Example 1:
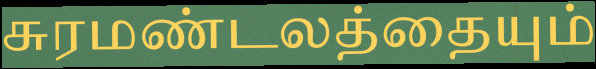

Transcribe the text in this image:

சுரமண்டலத்தையும்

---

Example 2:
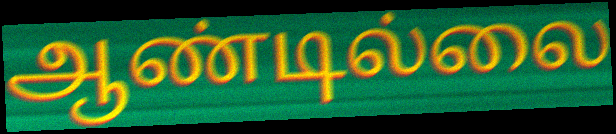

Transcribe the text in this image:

ஆண்டில்லை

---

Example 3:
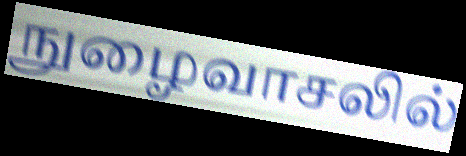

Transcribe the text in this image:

நுழைவாசலில்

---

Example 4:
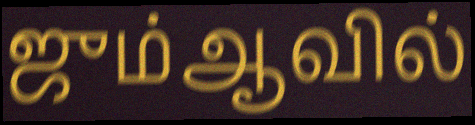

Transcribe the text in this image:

ஜும்ஆவில்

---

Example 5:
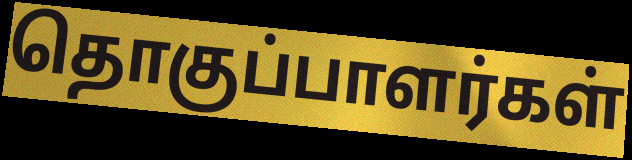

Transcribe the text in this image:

தொகுப்பாளர்கள்